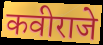
कवीराजे